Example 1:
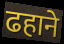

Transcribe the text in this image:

ढहाने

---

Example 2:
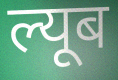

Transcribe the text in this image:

ल्यूब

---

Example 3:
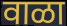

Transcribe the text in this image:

वाळा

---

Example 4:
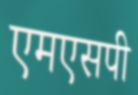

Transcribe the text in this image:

एमएसपी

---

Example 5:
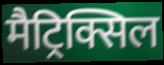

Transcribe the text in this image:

मैट्रिक्सिल